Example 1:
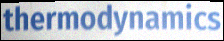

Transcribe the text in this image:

thermodynamics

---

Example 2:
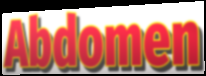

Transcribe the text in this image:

Abdomen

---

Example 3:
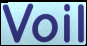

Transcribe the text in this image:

Voil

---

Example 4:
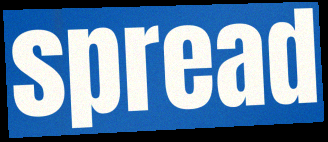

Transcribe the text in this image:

spread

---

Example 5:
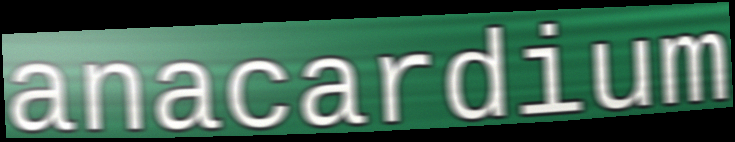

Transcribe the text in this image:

anacardium